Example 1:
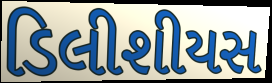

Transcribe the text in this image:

ડિલીશીયસ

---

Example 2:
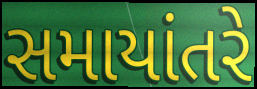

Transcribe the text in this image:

સમાયાંતરે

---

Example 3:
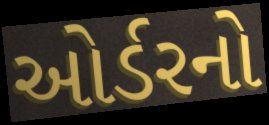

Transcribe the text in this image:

ઓર્ડરનો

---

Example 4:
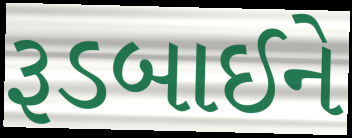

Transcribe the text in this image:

રૂડબાઈને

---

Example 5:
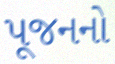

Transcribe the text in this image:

પૂજનનો